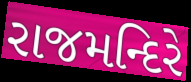
રાજમન્દિરે